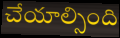
చేయాల్సింది